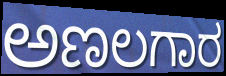
ಅಣಲಗಾರ